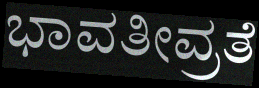
ಭಾವತೀವ್ರತೆ